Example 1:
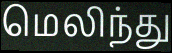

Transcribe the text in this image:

மெலிந்து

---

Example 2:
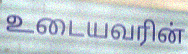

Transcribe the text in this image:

உடையவரின்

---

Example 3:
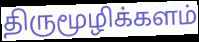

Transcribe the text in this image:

திருமூழிக்களம்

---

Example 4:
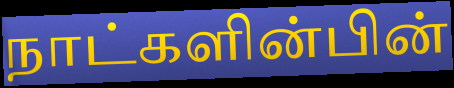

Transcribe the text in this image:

நாட்களின்பின்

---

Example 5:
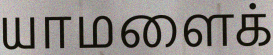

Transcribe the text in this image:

யாமளைக்